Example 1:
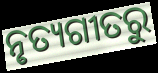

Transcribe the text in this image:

ନୃତ୍ୟଗୀତରୁ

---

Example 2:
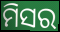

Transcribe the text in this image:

ମିସର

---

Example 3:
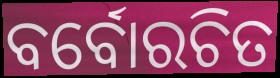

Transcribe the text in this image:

ବର୍ବୋରଚିତ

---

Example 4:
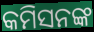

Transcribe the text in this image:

କମିସନଙ୍କ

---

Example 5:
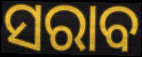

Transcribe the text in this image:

ସରାବ